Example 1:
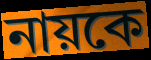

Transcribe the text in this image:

নায়কে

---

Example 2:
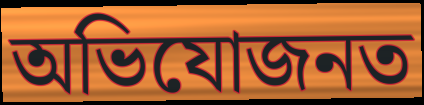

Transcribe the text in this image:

অভিযোজনত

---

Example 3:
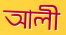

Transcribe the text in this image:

আলী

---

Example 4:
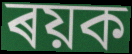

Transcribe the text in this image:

ৰয়ক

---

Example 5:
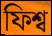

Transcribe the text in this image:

ফিশ্ব